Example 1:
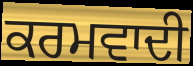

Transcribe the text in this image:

ਕਰਮਵਾਦੀ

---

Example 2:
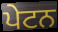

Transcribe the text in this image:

ਪੇਟਨ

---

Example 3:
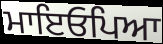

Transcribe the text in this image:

ਮਾਇਓਪਿਆ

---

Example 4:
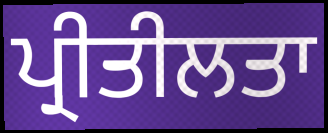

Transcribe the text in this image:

ਪ੍ਰੀਤੀਲਤਾ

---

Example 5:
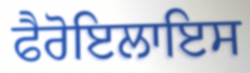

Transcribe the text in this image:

ਫੈਰੋਇਲਾਇਸ